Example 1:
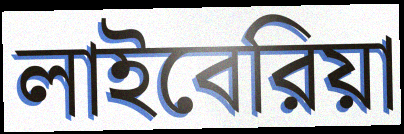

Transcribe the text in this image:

লাইবেরিয়া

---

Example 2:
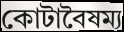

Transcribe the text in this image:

কোটাবৈষম্য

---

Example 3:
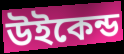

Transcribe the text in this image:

উইকেন্ড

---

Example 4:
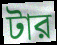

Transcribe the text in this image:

টার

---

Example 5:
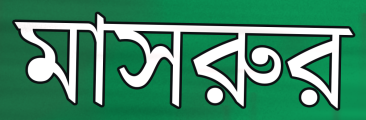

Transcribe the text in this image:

মাসরুর